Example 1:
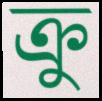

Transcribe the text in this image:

ক্রু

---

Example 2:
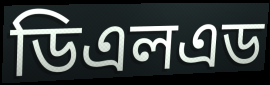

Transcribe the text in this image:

ডিএলএড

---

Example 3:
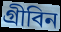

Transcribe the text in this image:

গ্রীবিন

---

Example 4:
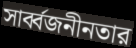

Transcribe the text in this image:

সার্ব্বজনীনতার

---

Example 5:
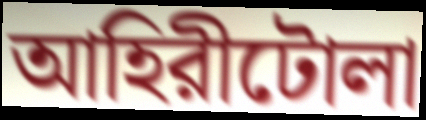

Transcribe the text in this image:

আহিরীটোলা